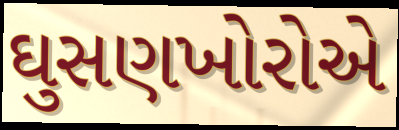
ઘુસણખોરોએ